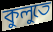
কুলুতে